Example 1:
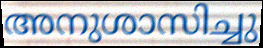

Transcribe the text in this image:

അനുശാസിച്ചു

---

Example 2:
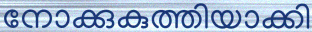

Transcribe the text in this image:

നോക്കുകുത്തിയാക്കി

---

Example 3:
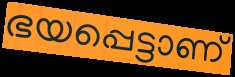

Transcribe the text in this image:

ഭയപ്പെട്ടാണ്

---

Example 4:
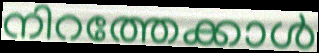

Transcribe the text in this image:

നിറത്തേക്കാൾ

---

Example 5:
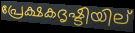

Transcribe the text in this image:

പ്രേക്ഷകദൃഷ്ടിയില്